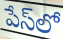
పేస్‌లో